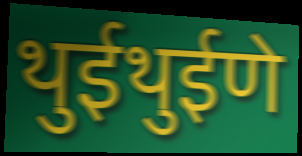
थुईथुईणे